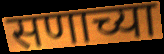
सणाच्या